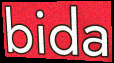
bida